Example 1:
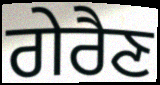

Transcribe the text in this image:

ਗੇਰੈਣ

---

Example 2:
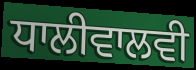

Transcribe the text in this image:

ਧਾਲੀਵਾਲਵੀ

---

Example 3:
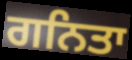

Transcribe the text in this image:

ਗਨਿਤਾ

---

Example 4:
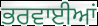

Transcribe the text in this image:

ਭਰਵਾਈਆਂ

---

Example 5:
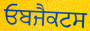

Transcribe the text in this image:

ਓਬਜੈਕਟਸ